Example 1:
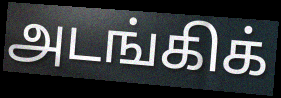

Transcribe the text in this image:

அடங்கிக்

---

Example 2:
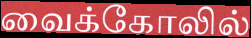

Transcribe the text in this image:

வைக்கோலில்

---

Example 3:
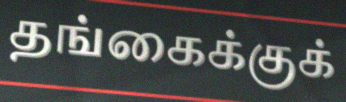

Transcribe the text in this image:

தங்கைக்குக்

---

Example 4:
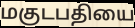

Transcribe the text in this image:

மகுடபதியை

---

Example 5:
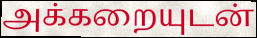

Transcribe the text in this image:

அக்கறையுடன்